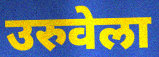
उरुवेला